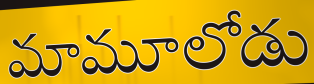
మామూలోడు